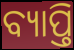
ବ୍ୟାପ୍ତି